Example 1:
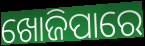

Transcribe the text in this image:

ଖୋଜିପାରେ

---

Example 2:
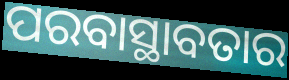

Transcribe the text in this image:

ପରବାସ୍ଥାବତାର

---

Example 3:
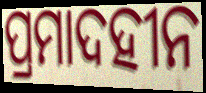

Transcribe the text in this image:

ପ୍ରମାଦହୀନ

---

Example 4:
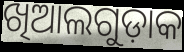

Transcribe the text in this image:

ଖିଆଲଗୁଡ଼ାକ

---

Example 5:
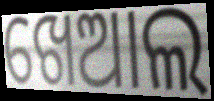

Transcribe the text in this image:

ଖେଆଲ